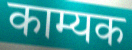
काम्यक